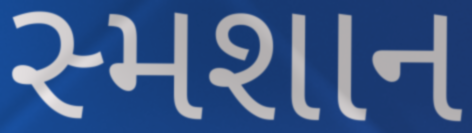
સ્મશાન